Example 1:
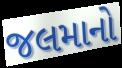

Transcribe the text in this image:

જલમાનો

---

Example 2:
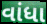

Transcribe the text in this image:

વાંધા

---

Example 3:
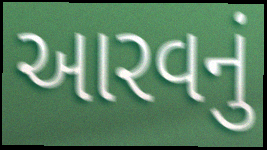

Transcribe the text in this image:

આરવનું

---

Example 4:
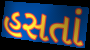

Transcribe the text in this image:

હસતાં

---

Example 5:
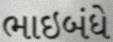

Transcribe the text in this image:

ભાઇબંધે